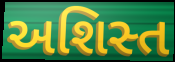
અશિસ્ત